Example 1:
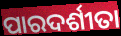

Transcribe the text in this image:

ପାରଦର୍ଶୀତା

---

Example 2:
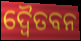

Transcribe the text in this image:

ଦ୍ୱୈତବନ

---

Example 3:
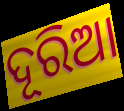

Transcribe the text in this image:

ଦୂରିଆ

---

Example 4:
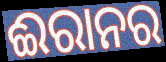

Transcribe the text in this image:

ଈରାନର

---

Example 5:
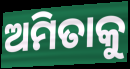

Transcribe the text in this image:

ଅମିତାକୁ